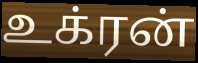
உக்ரன்